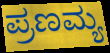
ಪ್ರಣಮ್ಯ